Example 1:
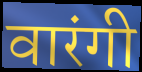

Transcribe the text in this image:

वारंगी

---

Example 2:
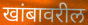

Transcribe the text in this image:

खांबावरील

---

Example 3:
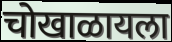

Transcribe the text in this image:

चोखाळायला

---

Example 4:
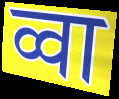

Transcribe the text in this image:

व्वा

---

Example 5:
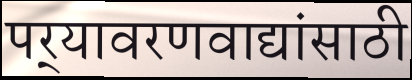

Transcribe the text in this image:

पर्यावरणवाद्यांसाठी